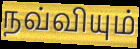
நவ்வியும்